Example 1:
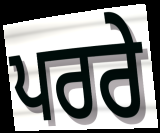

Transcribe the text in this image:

ਪਰਰੇ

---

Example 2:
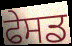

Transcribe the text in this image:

ਫੇਸਡ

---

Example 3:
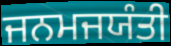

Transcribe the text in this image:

ਜਨਮਜਯੰਤੀ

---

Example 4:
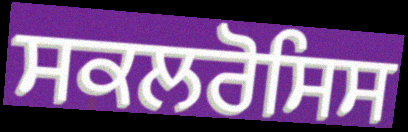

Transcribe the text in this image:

ਸਕਲਰੋਸਿਸ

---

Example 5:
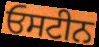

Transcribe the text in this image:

ਓਸਟੀਨ